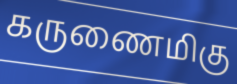
கருணைமிகு